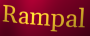
Rampal